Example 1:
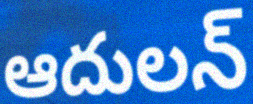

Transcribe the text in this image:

ఆదులన్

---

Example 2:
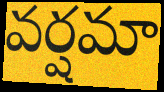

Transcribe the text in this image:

వర్షమా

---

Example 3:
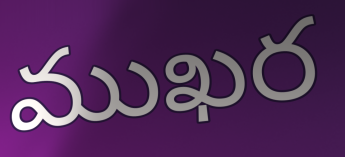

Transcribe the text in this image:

ముఖర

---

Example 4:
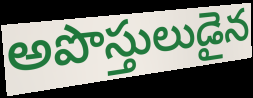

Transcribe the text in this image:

అపొస్తులుడైన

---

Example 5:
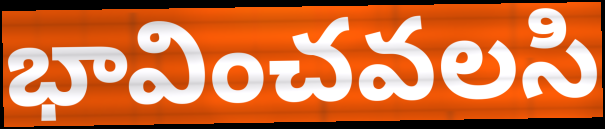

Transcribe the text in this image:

భావించవలసి